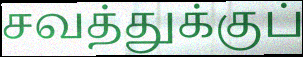
சவத்துக்குப்